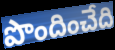
పొందించేది